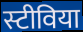
स्‍टीविया